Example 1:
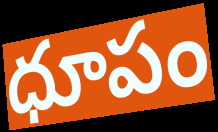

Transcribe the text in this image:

ధూపం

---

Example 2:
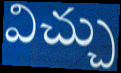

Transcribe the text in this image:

విచ్చు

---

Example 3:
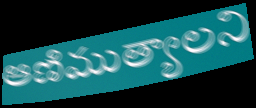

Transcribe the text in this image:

ఆణిముత్యాలని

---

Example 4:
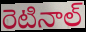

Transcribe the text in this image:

రెటినాల్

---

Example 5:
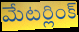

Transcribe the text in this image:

మేటర్లింక్